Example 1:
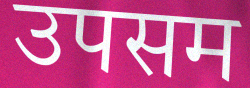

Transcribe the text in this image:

उपसम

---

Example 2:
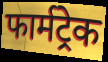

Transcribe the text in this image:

फार्मट्रेक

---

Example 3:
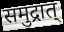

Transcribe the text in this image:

समुद्रात्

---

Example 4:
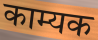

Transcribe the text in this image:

काम्यक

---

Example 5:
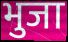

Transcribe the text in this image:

भुजा